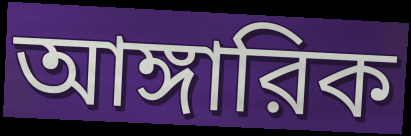
আঙ্গারিক